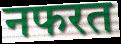
नफरत